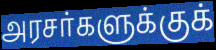
அரசர்களுக்குக்